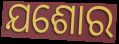
ଯଶୋର